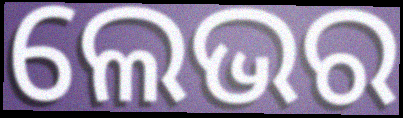
ଲେଭର